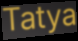
Tatya